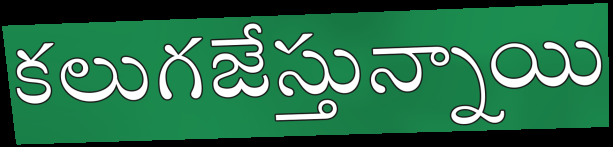
కలుగజేస్తున్నాయి